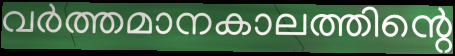
വർത്തമാനകാലത്തിന്റെ